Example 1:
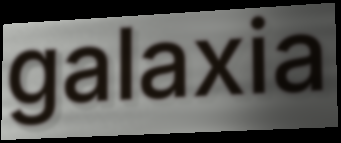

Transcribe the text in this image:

galaxia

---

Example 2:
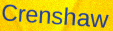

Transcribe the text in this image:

Crenshaw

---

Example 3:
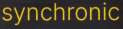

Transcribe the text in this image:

synchronic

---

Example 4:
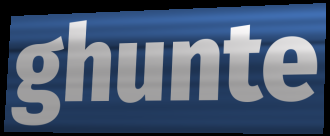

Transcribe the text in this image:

ghunte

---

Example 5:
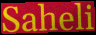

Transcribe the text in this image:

Saheli